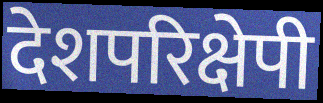
देशपरिक्षेपी